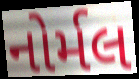
નોર્મલ